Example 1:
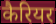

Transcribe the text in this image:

कैरियर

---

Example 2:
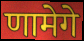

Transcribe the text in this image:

णामेगे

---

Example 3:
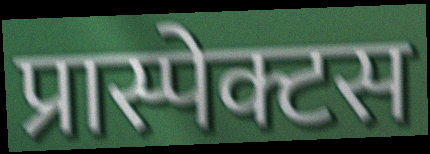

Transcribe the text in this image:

प्रास्पेक्टस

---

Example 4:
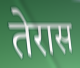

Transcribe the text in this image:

तेरास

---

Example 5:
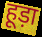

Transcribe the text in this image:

हूड़ा